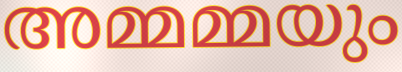
അമ്മമ്മയും